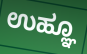
ಉಹ್ಞೂ